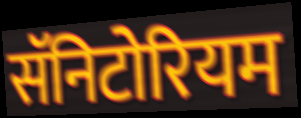
सॅनिटोरियम